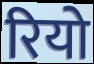
रियो